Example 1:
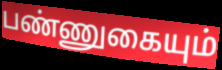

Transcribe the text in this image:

பண்ணுகையும்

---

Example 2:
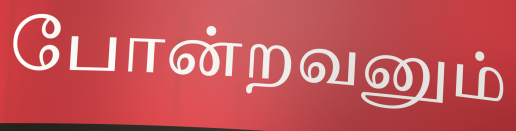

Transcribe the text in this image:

போன்றவனும்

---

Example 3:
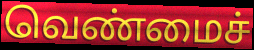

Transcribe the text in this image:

வெண்மைச்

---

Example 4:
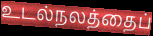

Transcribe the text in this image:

உடல்நலத்தைப்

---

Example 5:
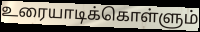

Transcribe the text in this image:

உரையாடிக்கொள்ளும்